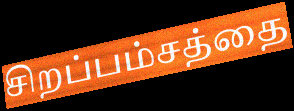
சிறப்பம்சத்தை